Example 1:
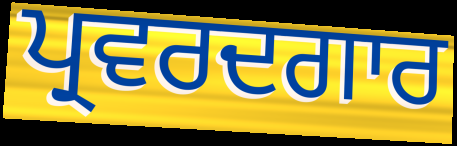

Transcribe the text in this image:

ਪ੍ਰਵਰਦਗਾਰ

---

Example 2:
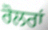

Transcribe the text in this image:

ਰੋਲਰਾਂ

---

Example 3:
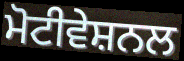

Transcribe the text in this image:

ਮੋਟੀਵੇਸ਼ਨਲ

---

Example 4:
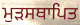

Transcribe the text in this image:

ਮੁੜਸਥਾਪਿਤ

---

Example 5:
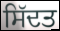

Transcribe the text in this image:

ਸਿੱਦਤ